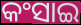
କଂସାଇ